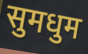
सुमधुम